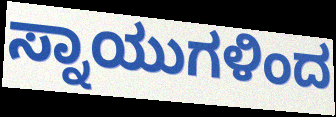
ಸ್ನಾಯುಗಳಿಂದ